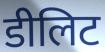
डीलिट